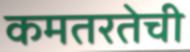
कमतरतेची